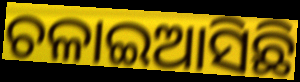
ଚଳାଇଆସିଛି